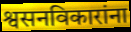
श्वसनविकारांना